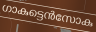
ഗാകുട്ടെൻസോകു